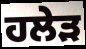
ਹਲੇੜ